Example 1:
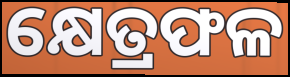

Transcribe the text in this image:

କ୍ଷେତ୍ରଫଳ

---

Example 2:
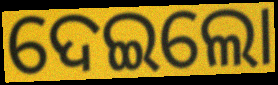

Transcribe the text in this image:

ଦେଇଲୋ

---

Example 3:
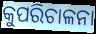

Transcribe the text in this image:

କୁପରିଚାଳନା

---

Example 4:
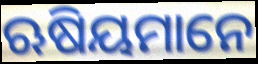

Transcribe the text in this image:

ଋଷିୟମାନେ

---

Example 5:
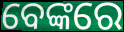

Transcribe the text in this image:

ବେଙ୍କରେ